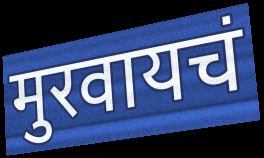
मुरवायचं